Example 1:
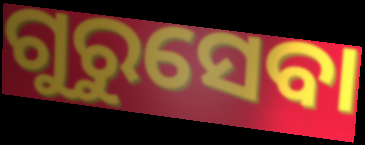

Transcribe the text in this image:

ଗୁରୁସେବା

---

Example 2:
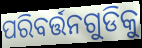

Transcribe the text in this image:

ପରିବର୍ତ୍ତନଗୁଡିକୁ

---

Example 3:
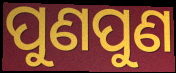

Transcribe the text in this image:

ପୁଣପୁଣ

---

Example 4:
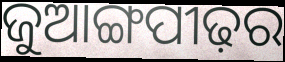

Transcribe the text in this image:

ଜୁଆଙ୍ଗପୀଢ଼ର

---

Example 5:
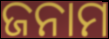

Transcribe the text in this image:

ଜନାମ